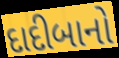
દાદીબાનો